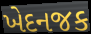
ખેદનજક